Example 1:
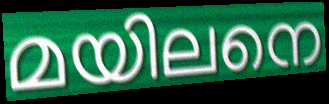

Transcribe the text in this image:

മയിലനെ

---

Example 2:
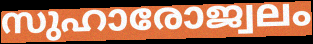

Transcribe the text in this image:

സുഹാരോജ്വലം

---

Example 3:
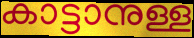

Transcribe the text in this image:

കാട്ടാനുള്ള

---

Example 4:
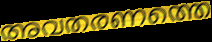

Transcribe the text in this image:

അവതരണത്തെ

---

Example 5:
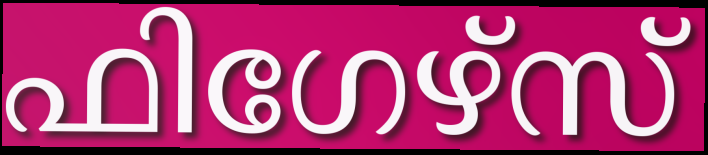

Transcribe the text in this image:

ഫിഗേഴ്സ്